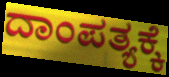
ದಾಂಪತ್ಯಕ್ಕೆ